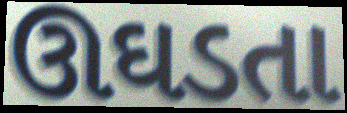
ઊઘડતા